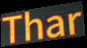
Thar